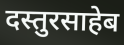
दस्तुरसाहेब